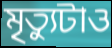
মৃত্যুটাও